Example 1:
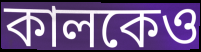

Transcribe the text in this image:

কালকেও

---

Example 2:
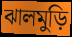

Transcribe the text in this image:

ঝালমুড়ি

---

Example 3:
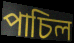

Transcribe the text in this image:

পাচিল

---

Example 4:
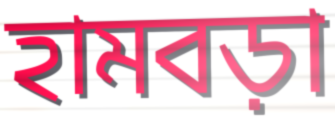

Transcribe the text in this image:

হামবড়া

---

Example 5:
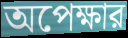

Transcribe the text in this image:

অপেক্ষার